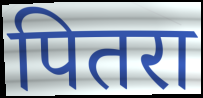
पितरा